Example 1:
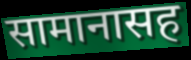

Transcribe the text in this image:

सामानासह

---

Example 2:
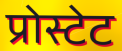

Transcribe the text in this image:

प्रोस्टेट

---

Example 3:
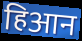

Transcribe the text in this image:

हिआन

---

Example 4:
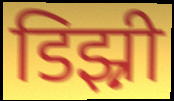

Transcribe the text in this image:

डिझ्नी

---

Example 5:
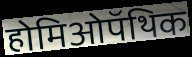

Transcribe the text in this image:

होमिओपॅथिक